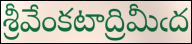
శ్రీవేంకటాద్రిమీఁద